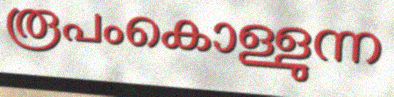
രൂപംകൊള്ളുന്ന